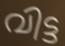
വിട്ട